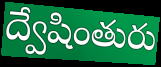
ద్వేషింతురు